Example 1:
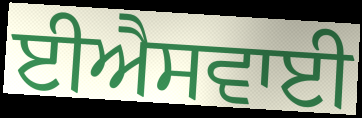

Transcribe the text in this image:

ਈਐਸਵਾਈ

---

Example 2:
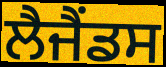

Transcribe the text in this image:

ਲੈਜੈਂਡਸ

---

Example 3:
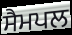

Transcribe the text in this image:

ਸੈਮਪਲ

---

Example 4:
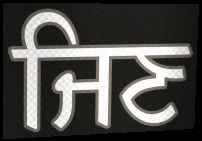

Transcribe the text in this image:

ਜਿਣ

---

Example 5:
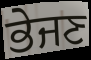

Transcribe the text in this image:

ਭੇਜਣ